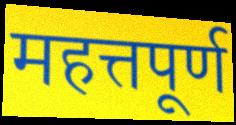
महत्तपूर्ण